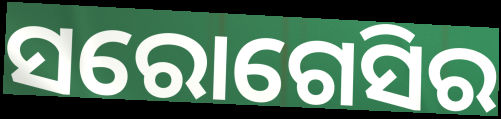
ସରୋଗେସିର